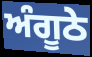
ਅੰਗੂਠੇ